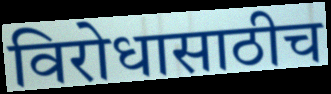
विरोधासाठीच